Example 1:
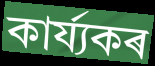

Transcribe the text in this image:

কাৰ্য্যকৰ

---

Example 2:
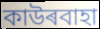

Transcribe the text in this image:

কাউৰবাহা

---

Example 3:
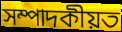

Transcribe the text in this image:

সম্পাদকীয়ত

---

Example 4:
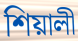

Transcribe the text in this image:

শিয়ালী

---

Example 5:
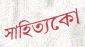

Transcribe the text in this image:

সাহিত্যকো